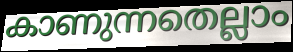
കാണുന്നതെല്ലാം